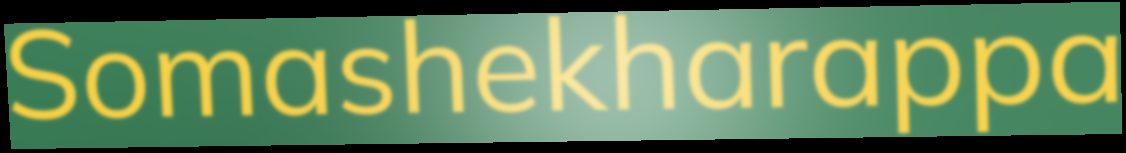
Somashekharappa